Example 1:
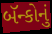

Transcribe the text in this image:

બૅન્કોનું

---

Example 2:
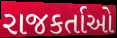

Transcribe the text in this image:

રાજકર્તાઓ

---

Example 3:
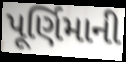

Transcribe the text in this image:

પૂર્ણિમાની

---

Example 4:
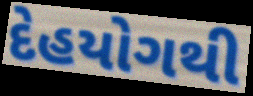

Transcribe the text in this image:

દેહયોગથી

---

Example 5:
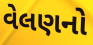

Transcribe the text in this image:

વેલણનો